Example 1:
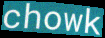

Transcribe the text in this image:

chowk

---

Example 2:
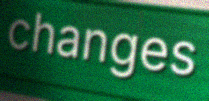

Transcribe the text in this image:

changes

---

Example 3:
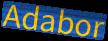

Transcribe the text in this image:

Adabor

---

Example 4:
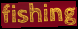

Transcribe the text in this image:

fishing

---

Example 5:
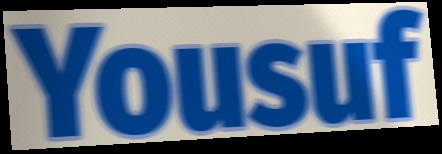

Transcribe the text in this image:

Yousuf